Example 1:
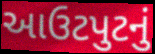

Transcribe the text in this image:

આઉટપુટનું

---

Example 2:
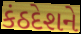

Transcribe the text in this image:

કંઠદેશને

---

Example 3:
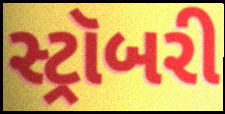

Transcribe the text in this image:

સ્ટ્રૉબરી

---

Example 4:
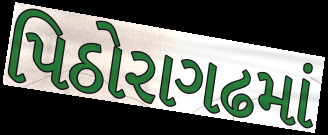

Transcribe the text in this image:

પિઠોરાગઢમાં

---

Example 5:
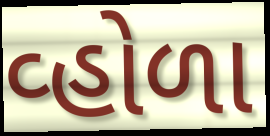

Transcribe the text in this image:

વ્હોળા